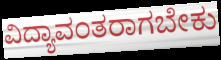
ವಿದ್ಯಾವಂತರಾಗಬೇಕು